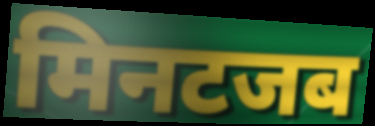
मिनटजब